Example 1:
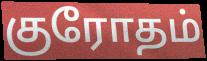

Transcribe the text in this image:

குரோதம்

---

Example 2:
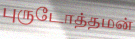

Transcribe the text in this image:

புருடோத்தமன்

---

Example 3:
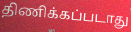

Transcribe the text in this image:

திணிக்கப்படாது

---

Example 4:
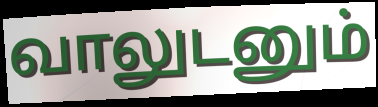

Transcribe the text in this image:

வாலுடனும்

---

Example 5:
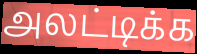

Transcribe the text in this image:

அலட்டிக்க